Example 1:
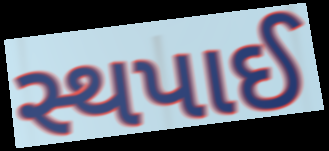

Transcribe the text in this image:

સ્થપાઈ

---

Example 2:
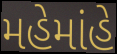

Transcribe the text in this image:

મહેમાંહે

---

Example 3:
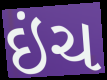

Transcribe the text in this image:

ઇંચ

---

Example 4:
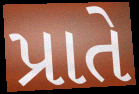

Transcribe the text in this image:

પ્રાતે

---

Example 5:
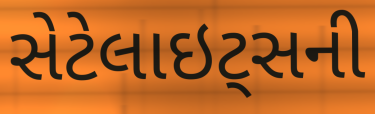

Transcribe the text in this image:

સેટેલાઇટ્સની